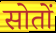
सोतों